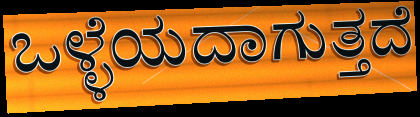
ಒಳ್ಳೆಯದಾಗುತ್ತದೆ